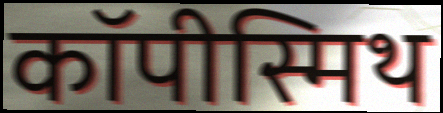
कॉपीस्मिथ